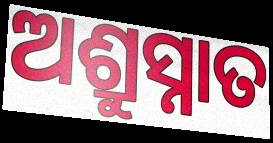
ଅଶ୍ରୁସ୍ନାତ